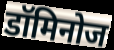
डॉमिनोज